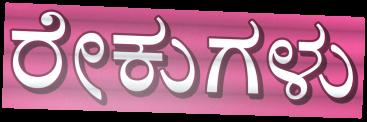
ರೇಕುಗಳು